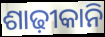
ଶାଢ଼ୀକାନି